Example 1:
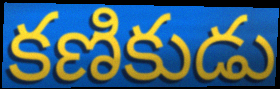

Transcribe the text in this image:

కణికుడు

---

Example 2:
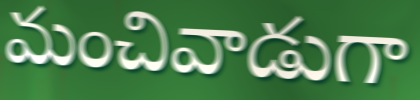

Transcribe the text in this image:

మంచివాడుగా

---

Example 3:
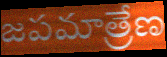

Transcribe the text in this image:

జపమాత్రేణ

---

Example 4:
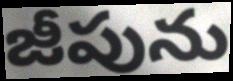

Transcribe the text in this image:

జీపును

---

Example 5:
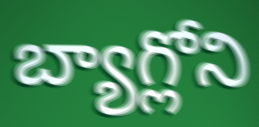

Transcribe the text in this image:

బ్యాగ్లోని